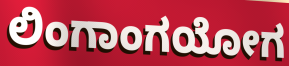
ಲಿಂಗಾಂಗಯೋಗ